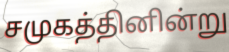
சமுகத்தினின்று